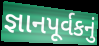
જ્ઞાનપૂર્વકનું